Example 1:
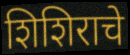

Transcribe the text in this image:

शिशिराचे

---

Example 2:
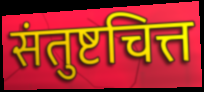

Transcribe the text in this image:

संतुष्टचित्त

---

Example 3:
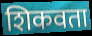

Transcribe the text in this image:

शिकवता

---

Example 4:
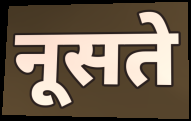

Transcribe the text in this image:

नूसते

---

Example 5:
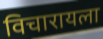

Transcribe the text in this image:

विचारायला